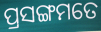
ପ୍ରସଙ୍ଗମତେ